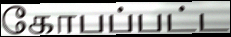
கோபப்பட்ட